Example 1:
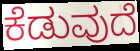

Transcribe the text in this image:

ಕೆಡುವುದೆ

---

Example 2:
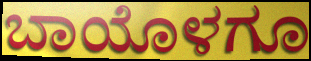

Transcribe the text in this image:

ಬಾಯೊಳಗೂ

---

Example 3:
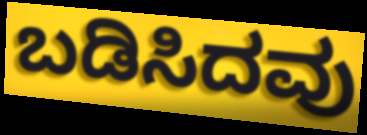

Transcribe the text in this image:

ಬಡಿಸಿದವು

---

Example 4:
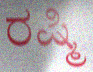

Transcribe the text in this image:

ರಷ್ಮಿ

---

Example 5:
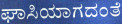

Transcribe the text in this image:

ಘಾಸಿಯಾಗದಂತೆ